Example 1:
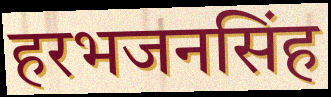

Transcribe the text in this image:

हरभजनसिंह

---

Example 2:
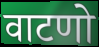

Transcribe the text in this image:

वाटणो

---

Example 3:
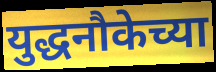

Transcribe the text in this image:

युद्धनौकेच्या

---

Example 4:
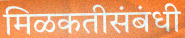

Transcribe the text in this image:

मिळकतीसंबंधी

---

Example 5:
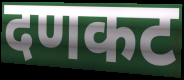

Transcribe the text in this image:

दणकट